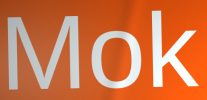
Mok